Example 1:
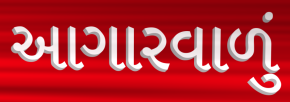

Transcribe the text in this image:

આગારવાળું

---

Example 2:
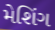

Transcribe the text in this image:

મેશિંગ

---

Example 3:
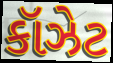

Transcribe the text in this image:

કૉઝેટ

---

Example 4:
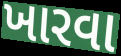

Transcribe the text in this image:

ખારવા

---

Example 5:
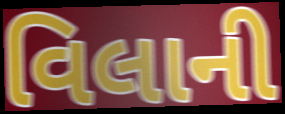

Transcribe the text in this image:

વિલાની